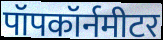
पॉपकॉर्नमीटर